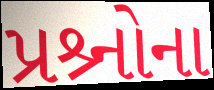
પ્રશ્ર્નોના